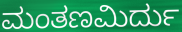
ಮಂತಣಮಿರ್ದು